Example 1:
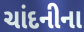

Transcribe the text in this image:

ચાંદનીના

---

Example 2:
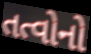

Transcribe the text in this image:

તત્વોનો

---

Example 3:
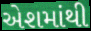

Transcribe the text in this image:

એશમાંથી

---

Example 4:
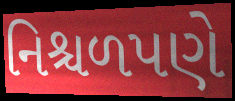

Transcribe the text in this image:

નિશ્ચળપણે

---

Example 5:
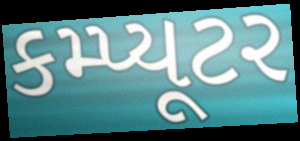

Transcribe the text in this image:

કમ્પ્યૂટર